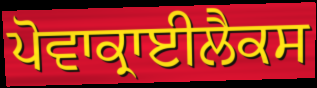
ਪੋਵਾਕ੍ਰਾਈਲੈਕਸ